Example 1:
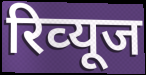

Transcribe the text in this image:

रिव्‍यूज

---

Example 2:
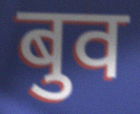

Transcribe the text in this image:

बुव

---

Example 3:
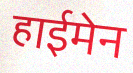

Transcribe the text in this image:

हाईमेन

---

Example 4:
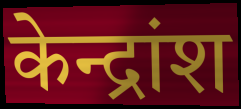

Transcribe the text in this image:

केन्द्रांश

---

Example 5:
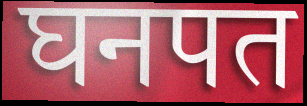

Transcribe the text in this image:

घनपत